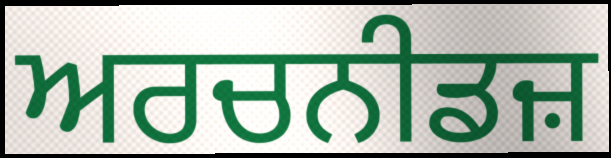
ਅਰਚਨੀਡਜ਼